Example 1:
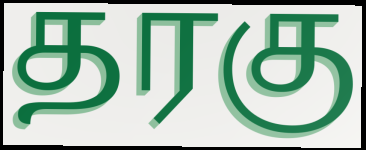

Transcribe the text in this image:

தரகு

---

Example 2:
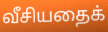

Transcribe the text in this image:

வீசியதைக்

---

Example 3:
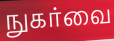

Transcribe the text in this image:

நுகர்வை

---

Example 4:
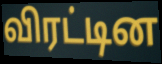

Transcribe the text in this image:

விரட்டின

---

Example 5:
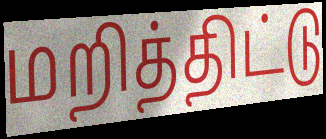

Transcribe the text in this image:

மறித்திட்டு